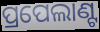
ପ୍ରପେଲାଣ୍ଟ